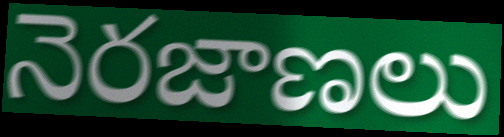
నెరజాణలు